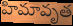
హిమావృత